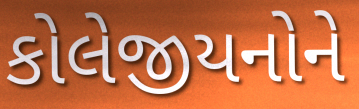
કોલેજીયનોને